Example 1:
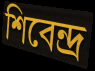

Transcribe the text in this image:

শিবেন্দ্র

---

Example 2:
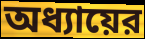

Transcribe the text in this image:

অধ্যায়ের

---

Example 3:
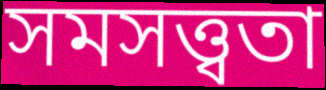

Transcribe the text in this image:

সমসত্ত্বতা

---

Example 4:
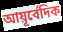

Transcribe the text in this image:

আয়ূর্বেদিক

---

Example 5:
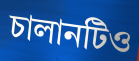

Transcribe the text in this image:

চালানটিও